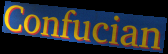
Confucian